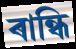
ৰান্ধি